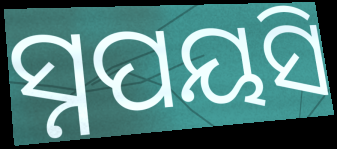
ସ୍ନପୟସି